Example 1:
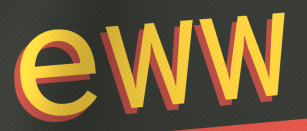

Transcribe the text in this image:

eww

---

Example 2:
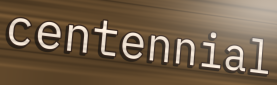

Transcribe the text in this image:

centennial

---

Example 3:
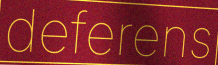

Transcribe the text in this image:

deferens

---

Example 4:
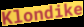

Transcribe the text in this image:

Klondike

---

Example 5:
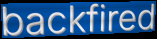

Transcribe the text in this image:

backfired